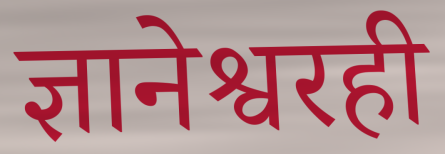
ज्ञानेश्वरही